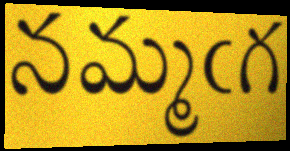
నమ్మఁగ